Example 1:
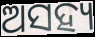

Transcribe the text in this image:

ଅସହ୍ୟ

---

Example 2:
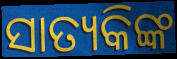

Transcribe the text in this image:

ସାତ୍ୟକିଙ୍କ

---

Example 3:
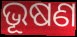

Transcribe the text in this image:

ଭୂଷଣ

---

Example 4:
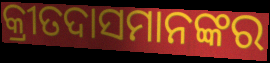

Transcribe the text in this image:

କ୍ରୀତଦାସମାନଙ୍କର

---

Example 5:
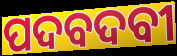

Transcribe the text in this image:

ପଦବଦବୀ